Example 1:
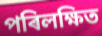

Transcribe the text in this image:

পৰিলক্ষিত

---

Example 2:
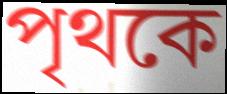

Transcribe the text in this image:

পৃথকে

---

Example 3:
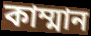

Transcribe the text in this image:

কাম্মান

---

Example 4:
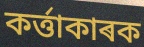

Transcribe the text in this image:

কৰ্ত্তাকাৰক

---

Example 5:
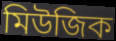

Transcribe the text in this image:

মিউজিক